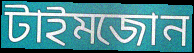
টাইমজোন